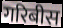
गरिबीस